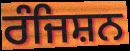
ਰੰਜਿਸ਼ਨ